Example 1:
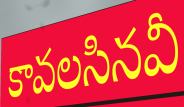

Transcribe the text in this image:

కావలసినవీ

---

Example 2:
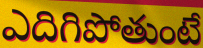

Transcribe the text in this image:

ఎదిగిపోతుంటే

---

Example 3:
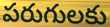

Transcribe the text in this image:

పరుగులకు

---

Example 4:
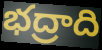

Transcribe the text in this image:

భద్రాది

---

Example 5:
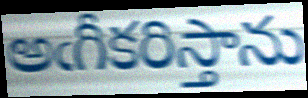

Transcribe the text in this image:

అఁగీకరిస్తాను